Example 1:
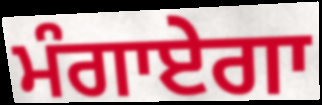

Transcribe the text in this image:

ਮੰਗਾਏਗਾ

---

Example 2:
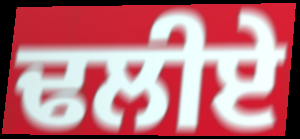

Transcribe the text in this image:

ਢਲੀਏ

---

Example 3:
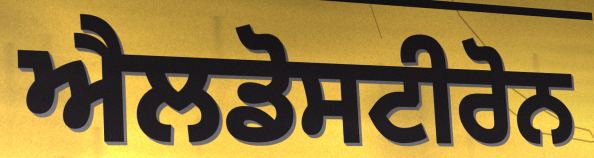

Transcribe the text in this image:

ਐਲਡੋਸਟੀਰੋਨ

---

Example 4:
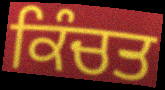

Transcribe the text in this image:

ਕਿੰਚਤ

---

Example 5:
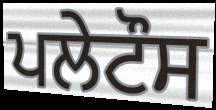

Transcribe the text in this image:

ਪਲੇਟੌਸ